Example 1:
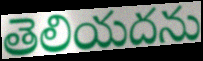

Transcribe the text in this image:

తెలియదను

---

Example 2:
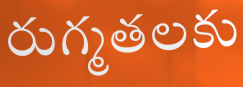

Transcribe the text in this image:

రుగ్మతలకు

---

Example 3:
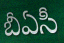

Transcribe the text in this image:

బీఏసీ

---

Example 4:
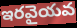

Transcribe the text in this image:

ఇరవైయవ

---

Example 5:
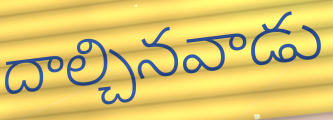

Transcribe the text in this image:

దాల్చినవాడు